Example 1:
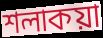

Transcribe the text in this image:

শলাকয়া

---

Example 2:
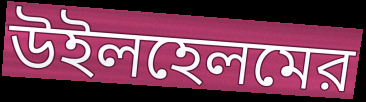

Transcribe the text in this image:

উইলহেলমের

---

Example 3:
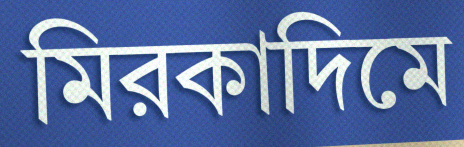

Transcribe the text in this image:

মিরকাদিমে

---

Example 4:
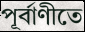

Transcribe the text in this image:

পূর্বাণীতে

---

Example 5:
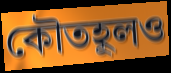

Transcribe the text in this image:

কৌতহূলও